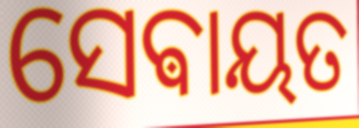
ସେଵାୟତ